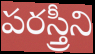
పరస్త్రీని